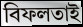
বিফলতাই